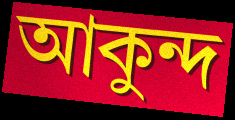
আকুন্দ